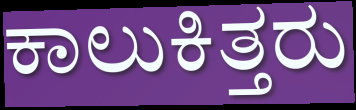
ಕಾಲುಕಿತ್ತರು